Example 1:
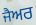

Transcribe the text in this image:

ਜੈਅਰ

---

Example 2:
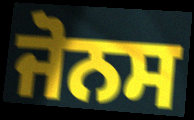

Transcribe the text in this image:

ਜੋਨਸ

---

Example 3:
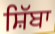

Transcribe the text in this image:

ਸ਼ਿੱਬਾ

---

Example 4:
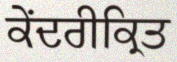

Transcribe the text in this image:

ਕੇਂਦਰੀਕ੍ਰਿਤ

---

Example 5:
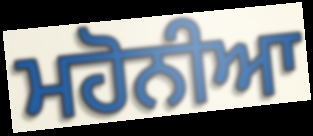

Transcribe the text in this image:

ਮਹੋਨੀਆ